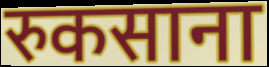
रुकसाना